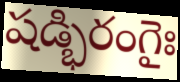
షడ్భిరంగైః